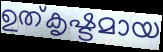
ഉത്കൃഷ്ടമായ